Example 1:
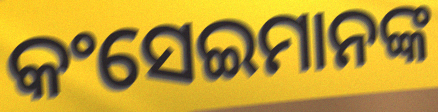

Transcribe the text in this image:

କଂସେଇମାନଙ୍କ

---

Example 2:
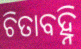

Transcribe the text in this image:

ଚିତାବହ୍ନି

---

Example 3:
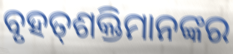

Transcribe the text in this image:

ବୃହତ୍‍ଶକ୍ତିମାନଙ୍କର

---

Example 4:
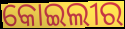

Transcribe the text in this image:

କୋଇଲୀର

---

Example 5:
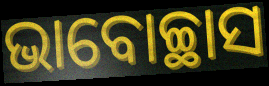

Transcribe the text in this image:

ଭାବୋଚ୍ଛାସ